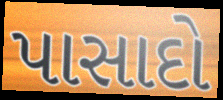
પાસાદો